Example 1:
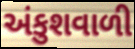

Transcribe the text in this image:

અંકુશવાળી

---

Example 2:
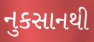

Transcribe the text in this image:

નુકસાનથી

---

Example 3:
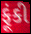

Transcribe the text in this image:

ફૂંકી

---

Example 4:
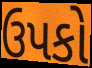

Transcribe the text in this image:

ઉપકો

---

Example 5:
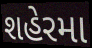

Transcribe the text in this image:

શહેરમા